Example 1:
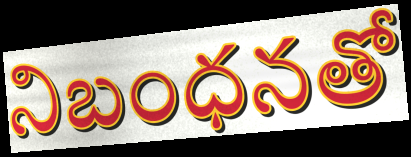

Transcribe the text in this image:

నిబంధనతో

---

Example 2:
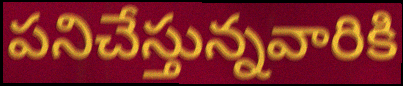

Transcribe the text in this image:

పనిచేస్తున్నవారికి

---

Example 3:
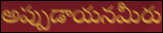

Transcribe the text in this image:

అప్పుడాయనమీరు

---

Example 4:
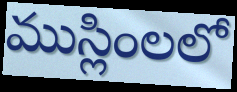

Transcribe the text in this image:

ముస్లింలలో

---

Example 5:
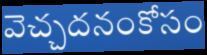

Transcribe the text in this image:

వెచ్చదనంకోసం